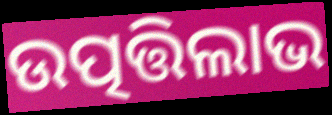
ଉତ୍ପତ୍ତିଲାଭ